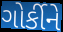
ગોર્કીને